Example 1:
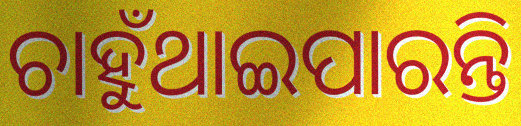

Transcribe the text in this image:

ଚାହୁଁଥାଇପାରନ୍ତି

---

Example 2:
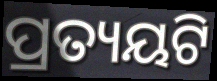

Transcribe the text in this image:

ପ୍ରତ୍ୟୟଟି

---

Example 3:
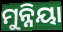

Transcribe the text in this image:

ମୁନ୍ନିୟା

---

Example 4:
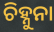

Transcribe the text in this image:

ଚିହ୍ନୁନା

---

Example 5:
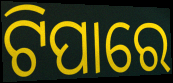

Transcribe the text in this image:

ଟିପାରେ